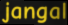
jangal